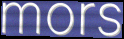
mors